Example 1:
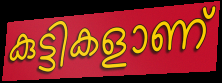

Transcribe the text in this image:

കുട്ടികളാണ്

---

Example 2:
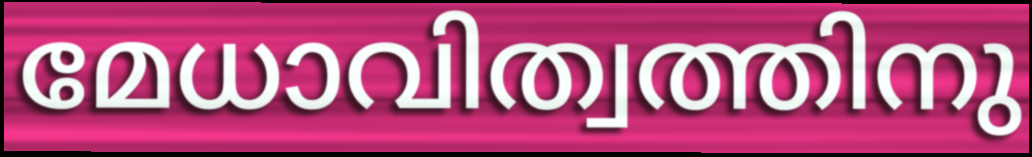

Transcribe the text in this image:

മേധാവിത്വത്തിനു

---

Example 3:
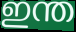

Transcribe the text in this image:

ഇന്ത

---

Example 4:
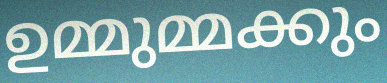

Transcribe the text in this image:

ഉമ്മുമ്മക്കും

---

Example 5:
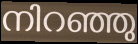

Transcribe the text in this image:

നിറഞ്ഞു